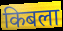
किबला